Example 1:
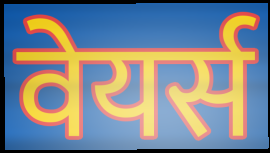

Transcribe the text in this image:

वेयर्स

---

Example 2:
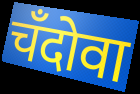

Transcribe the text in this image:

चँदोवा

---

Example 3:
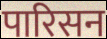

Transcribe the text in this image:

पारिसन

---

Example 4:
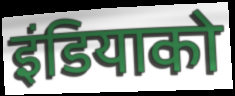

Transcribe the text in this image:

इंडियाको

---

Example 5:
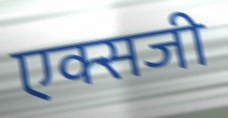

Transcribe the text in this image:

एक्सजी